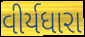
વીર્યધારા